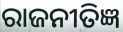
ରାଜନୀତିଜ୍ଞ